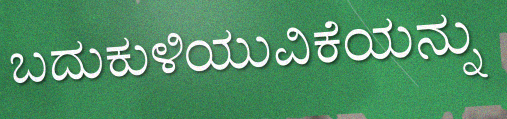
ಬದುಕುಳಿಯುವಿಕೆಯನ್ನು